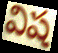
విష